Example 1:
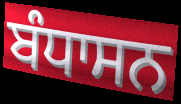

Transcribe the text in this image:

ਬੰਧਾਸਨ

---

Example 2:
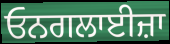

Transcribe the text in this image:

ਓਨਗਲਾਈਜ਼ਾ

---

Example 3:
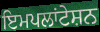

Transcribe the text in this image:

ਇਮਪਲਾਂਟੇਸ਼ਨ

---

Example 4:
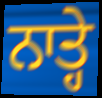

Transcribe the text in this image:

ਨਾਤ੍ਹੇ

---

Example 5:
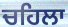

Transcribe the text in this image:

ਚਹਿਲਾ